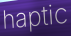
haptic